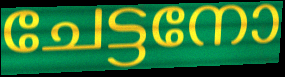
ചേട്ടനോ